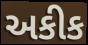
અકીક